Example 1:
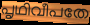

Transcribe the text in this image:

പൃഥിവീപതേ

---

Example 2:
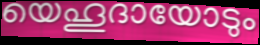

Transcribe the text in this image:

യെഹൂദായോടും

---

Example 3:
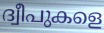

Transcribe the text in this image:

ദ്വീപുകളെ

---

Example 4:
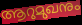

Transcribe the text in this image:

ആറുമുഖനും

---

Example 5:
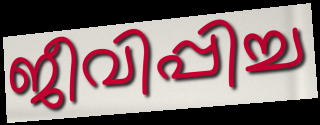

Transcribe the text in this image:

ജീവിപ്പിച്ച